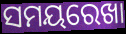
ସମୟରେଖା